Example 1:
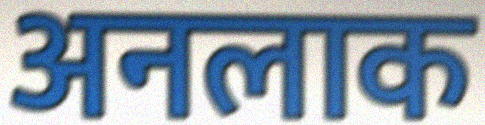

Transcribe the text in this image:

अनलाक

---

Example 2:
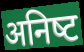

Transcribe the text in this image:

अनिष्‍ट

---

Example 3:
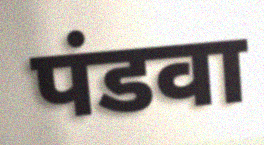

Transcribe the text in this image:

पंडवा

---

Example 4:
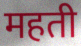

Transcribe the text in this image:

महती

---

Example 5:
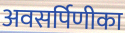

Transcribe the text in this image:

अवसर्पिणीका